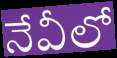
నేవీలో